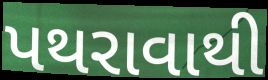
પથરાવાથી